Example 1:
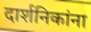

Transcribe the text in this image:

दार्शनिकांना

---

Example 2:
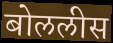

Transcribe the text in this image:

बोललीस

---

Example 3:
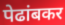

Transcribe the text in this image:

पेढांबकर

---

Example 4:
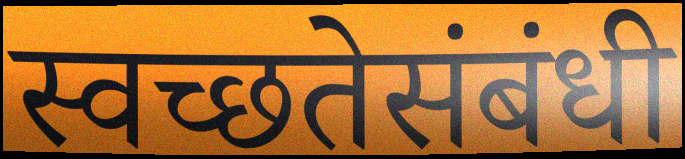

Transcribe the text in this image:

स्वच्छतेसंबंधी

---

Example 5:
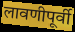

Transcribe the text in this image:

लावणीपूर्वी